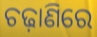
ଚଢ଼ାଣିରେ